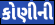
કોણીની